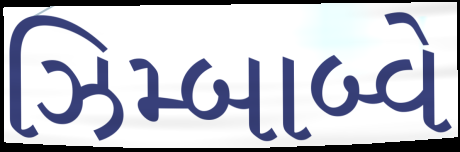
ઝિમ્બાબ્વે